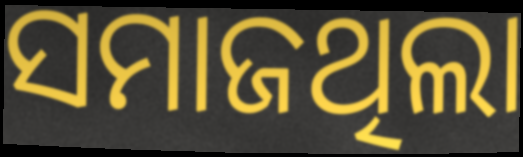
ସମାଜଥିଲା